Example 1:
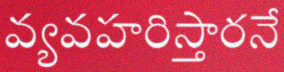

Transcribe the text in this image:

వ్యవహరిస్తారనే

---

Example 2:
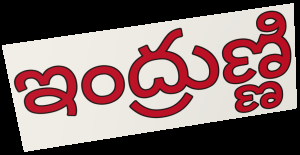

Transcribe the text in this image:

ఇంద్రుణ్ణి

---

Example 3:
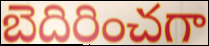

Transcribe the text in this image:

బెదిరించగా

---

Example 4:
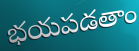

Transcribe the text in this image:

భయపడతాం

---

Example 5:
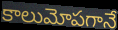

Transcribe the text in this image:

కాలుమోపగానే